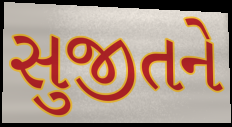
સુજીતને